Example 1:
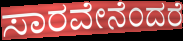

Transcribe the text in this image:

ಸಾರವೇನೆಂದರೆ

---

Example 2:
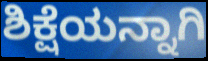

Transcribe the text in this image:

ಶಿಕ್ಷೆಯನ್ನಾಗಿ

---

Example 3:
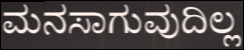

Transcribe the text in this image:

ಮನಸಾಗುವುದಿಲ್ಲ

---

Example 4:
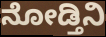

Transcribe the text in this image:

ನೋಡ್ತಿನಿ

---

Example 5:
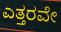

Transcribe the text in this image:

ಎತ್ತರವೇ